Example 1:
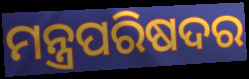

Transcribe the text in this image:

ମନ୍ତ୍ରପରିଷଦର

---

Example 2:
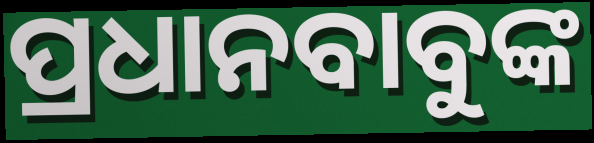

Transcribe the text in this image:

ପ୍ରଧାନବାବୁଙ୍କ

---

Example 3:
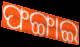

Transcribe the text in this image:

ଫଙ୍ଗାଇ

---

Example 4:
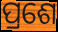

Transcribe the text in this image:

ପ୍ରଶେ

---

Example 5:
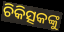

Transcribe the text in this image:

ଚିକିତ୍ସକଙ୍କୁ